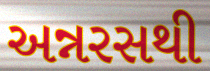
અન્નરસથી